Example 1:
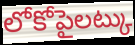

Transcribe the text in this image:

లోకోపైలట్కు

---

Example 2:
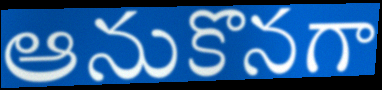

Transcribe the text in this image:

ఆనుకొనగా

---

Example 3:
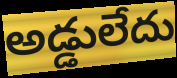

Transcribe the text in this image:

అడ్డులేదు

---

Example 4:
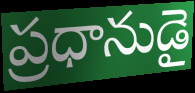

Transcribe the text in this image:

ప్రధానుడై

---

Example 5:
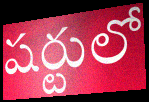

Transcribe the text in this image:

షర్టులో